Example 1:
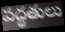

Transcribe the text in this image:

పద్ధతులు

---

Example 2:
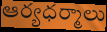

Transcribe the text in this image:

ఆర్యధర్మాలు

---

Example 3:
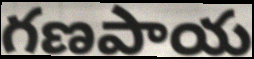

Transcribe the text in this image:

గణపాయ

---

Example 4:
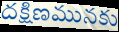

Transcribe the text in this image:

దక్షిణమునకు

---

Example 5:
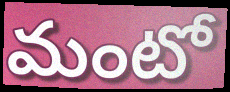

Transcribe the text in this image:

మంటో